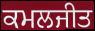
ਕਮਲਜੀਤ